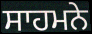
ਸਾਹਮਨੇ